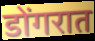
डोंगरात